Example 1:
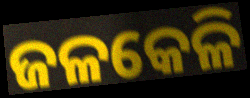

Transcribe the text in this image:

ଜଳକେଳି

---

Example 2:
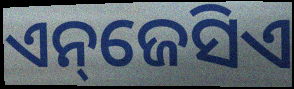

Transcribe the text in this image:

ଏନ୍‌ଜେସିଏ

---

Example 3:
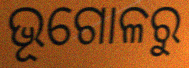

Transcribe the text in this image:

ଭୂଗୋଳରୁ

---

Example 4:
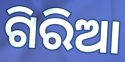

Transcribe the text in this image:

ଗିରିଆ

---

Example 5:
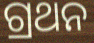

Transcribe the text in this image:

ଗ୍ରଥନ